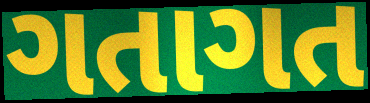
ગતાગત